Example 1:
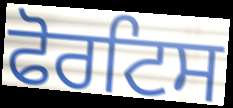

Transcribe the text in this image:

ਫੋਰਟਿਸ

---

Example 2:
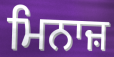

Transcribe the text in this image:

ਮਿਨਾਜ਼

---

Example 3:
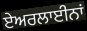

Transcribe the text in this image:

ਏਅਰਲਾਈਨਾਂ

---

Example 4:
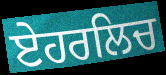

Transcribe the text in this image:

ਏਹਰਲਿਚ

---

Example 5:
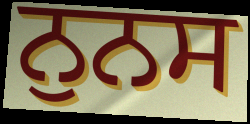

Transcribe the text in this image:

ਨੁਨਸ